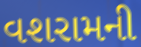
વશરામની